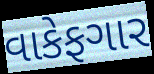
વાકેફગાર